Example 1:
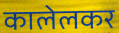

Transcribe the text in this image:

कालेलकर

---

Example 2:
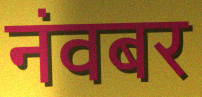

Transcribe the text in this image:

नंवबर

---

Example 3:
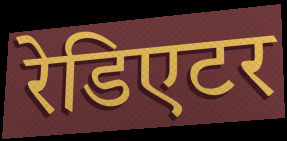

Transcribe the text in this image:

रेडिएटर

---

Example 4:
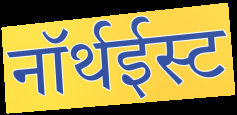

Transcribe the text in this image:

नॉर्थईस्‍ट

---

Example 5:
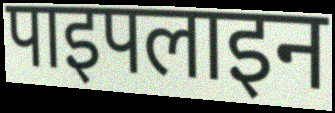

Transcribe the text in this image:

पाइपलाइन